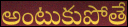
అంటుకుపోతే